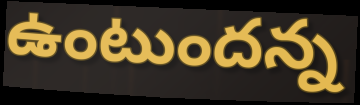
ఉంటుందన్న